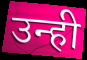
उन्ही